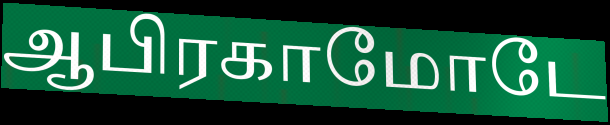
ஆபிரகாமோடே